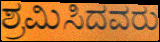
ಶ್ರಮಿಸಿದವರು